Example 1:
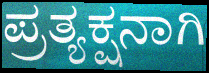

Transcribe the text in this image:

ಪ್ರತ್ಯಕ್ಷನಾಗಿ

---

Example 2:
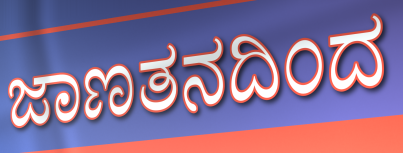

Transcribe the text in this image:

ಜಾಣತನದಿಂದ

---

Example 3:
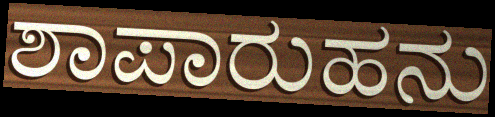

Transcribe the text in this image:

ಶಾಪಾರುಹನು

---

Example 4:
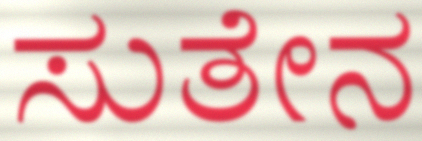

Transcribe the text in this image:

ಸುತೇನ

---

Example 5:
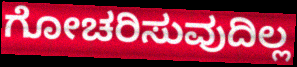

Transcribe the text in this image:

ಗೋಚರಿಸುವುದಿಲ್ಲ